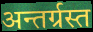
अन्तर्ग्रस्त